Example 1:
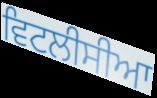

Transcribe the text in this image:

ਵਿਟਲੀਸੀਆ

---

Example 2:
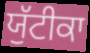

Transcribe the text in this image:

ਯੁੱਟੀਕਾ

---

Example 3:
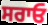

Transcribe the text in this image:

ਸਰਾਓ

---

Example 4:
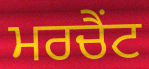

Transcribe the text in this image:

ਮਰਚੈਂਟ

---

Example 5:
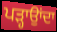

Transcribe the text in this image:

ਪੜ੍ਹਾਉਾਂਦਾ